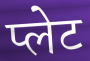
प्‍लेट